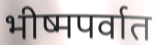
भीष्मपर्वात